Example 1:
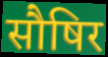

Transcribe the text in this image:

सौषिर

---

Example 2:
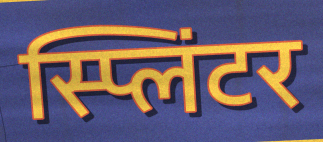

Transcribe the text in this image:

स्प्लिंटर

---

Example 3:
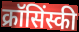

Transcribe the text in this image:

क्रॉसिंस्की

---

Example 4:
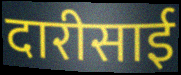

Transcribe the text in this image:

दारीसाई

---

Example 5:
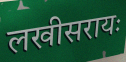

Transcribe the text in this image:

लखीसरायः